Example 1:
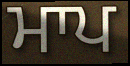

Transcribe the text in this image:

ਮਾਪ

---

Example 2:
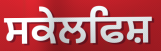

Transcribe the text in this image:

ਸਕੇਲਫਿਸ਼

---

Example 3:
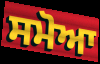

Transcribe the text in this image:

ਸਮੋਆ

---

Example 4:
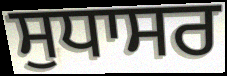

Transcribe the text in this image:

ਸੁਧਾਸਰ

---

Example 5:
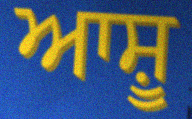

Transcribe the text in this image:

ਆਸ਼ੂ